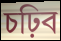
চঢ়িব